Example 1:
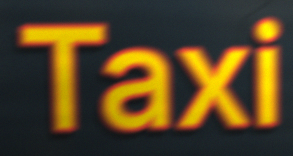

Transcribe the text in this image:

Taxi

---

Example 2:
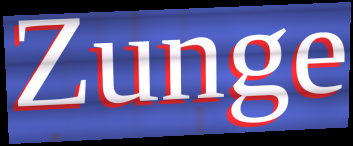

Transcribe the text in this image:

Zunge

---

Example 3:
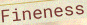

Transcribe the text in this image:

Fineness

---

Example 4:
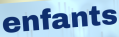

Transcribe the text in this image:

enfants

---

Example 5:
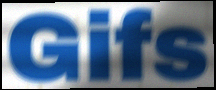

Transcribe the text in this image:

Gifs